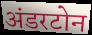
अंडरटोन